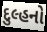
દુલ્હનો